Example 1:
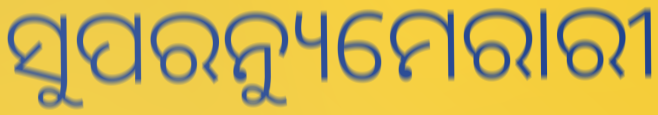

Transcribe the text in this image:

ସୁପରନ୍ୟୁମେରାରୀ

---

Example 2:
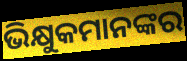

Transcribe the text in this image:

ଭିକ୍ଷୁକମାନଙ୍କର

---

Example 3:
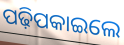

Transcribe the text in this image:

ପଢ଼ିପକାଇଲେ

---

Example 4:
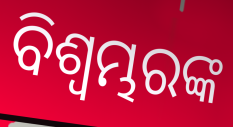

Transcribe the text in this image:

ବିଶ୍ୱମ୍ଭରଙ୍କ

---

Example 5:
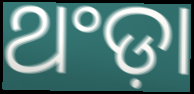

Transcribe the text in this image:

ଥଂଡ଼ା